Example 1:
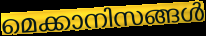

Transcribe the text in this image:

മെക്കാനിസങ്ങൾ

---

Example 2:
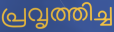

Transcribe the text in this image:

പ്രവൃത്തിച്ച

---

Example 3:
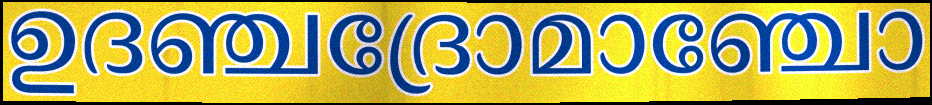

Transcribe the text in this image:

ഉദഞ്ചദ്രോമാഞ്ചോ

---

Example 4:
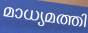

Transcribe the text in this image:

മാധ്യമത്തി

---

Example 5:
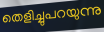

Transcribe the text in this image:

തെളിച്ചുപറയുന്നു